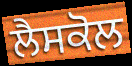
ਲੈਸਕੋਲ